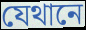
যেথানে